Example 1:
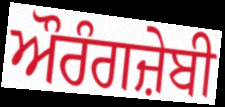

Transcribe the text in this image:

ਔਰੰਗਜ਼ੇਬੀ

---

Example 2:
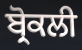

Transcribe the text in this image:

ਬ੍ਰੋਕਲੀ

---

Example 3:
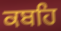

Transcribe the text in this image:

ਕਬਹਿ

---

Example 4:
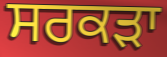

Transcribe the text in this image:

ਸਰਕੜਾ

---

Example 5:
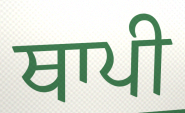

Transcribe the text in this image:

ਥਾਪੀ